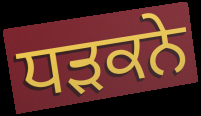
ਧਡ਼ਕਨੇ